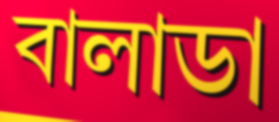
বালাডা